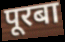
पूरबा